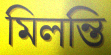
মিলন্তি